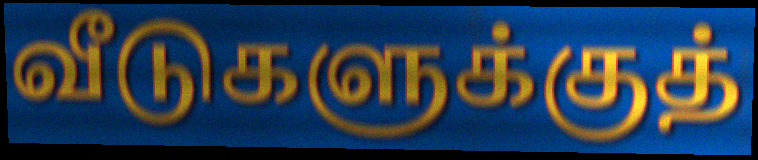
வீடுகளுக்குத்